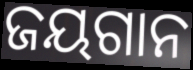
ଜୟଗାନ